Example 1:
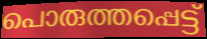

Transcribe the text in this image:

പൊരുത്തപ്പെട്ട്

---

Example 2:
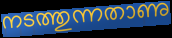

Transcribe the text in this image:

നടത്തുന്നതാണു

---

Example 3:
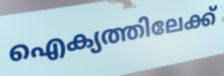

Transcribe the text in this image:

ഐക്യത്തിലേക്ക്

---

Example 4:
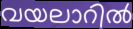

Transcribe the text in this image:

വയലാറിൽ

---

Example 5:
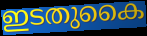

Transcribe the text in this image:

ഇടതുകൈ